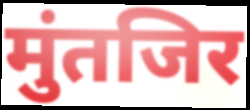
मुंतजिर